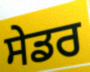
ਸੇਡਰ